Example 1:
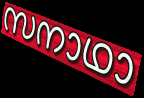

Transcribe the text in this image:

സനാഥാ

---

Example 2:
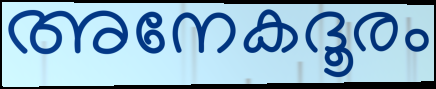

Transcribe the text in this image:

അനേകദൂരം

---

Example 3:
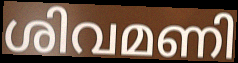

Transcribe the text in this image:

ശിവമണി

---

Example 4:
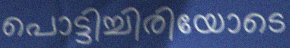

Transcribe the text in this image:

പൊട്ടിച്ചിരിയോടെ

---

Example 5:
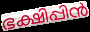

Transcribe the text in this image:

ഭക്ഷിപ്പിൻ